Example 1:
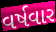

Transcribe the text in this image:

વર્ષવાર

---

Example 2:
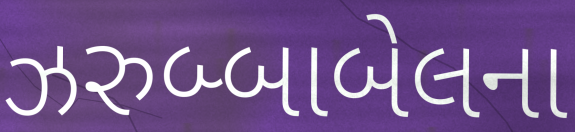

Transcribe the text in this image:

ઝરુબ્બાબેલના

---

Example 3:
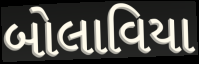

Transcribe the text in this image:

બોલાવિયા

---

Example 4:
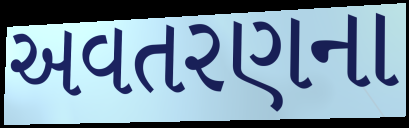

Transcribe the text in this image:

અવતરણના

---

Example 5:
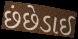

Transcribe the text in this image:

છંછેડાઈ